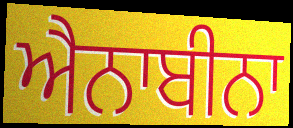
ਐਨਾਬੀਨਾ